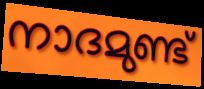
നാദമുണ്ട്